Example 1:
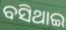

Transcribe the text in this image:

ବସିଥାଇ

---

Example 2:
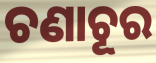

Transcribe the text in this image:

ଚଣାଚୂର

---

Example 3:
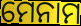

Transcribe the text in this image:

ମେନାମ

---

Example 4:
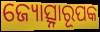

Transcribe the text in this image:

ଜ୍ୟୋତ୍ସ୍ନାରୂପକ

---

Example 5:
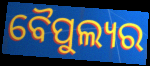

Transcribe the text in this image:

ବୈପୁଲ୍ୟର